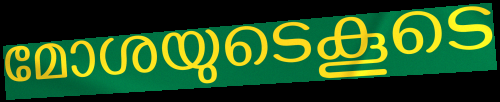
മോശയുടെകൂടെ